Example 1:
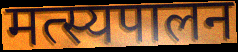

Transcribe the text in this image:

मत्स्यपालन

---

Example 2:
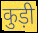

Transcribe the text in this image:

कुड़ी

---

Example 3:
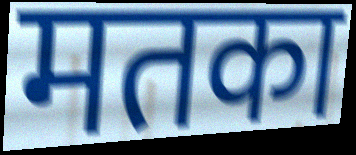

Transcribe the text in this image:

मतका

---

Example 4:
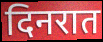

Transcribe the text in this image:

दिनरात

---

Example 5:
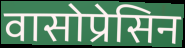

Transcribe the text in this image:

वासोप्रेसिन